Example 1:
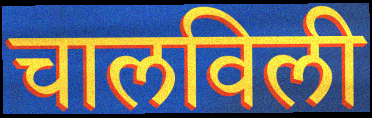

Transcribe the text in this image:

चालविली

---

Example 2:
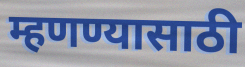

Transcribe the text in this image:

म्हणण्यासाठी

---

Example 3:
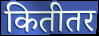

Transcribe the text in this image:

कितीतर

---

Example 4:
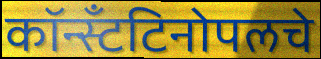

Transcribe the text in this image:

कॉन्स्टँटिनोपलचे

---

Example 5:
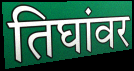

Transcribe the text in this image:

तिघांवर